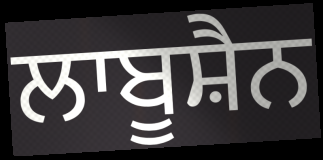
ਲਾਬੂਸ਼ੈਨ